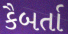
કૈબર્તા